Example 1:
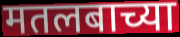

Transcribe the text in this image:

मतलबाच्या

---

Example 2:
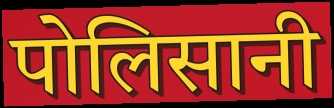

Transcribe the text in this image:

पोलिसानी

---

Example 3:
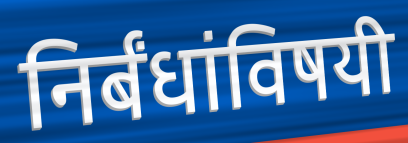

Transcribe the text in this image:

निर्बंधांविषयी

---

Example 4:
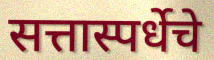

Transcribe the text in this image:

सत्तास्पर्धेचे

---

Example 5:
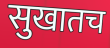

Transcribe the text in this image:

सुखातच